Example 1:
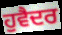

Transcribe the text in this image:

ਹੁਵੈਦਰ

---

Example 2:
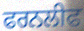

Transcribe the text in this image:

ਫਰਨਲੀਫ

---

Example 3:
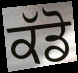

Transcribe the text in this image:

ਕੱਡੋ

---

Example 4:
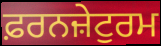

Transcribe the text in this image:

ਫ਼ਰਨਜ਼ੇਟੁਰਮ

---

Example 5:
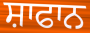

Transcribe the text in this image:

ਸ਼ਾਫਾਨ